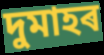
দুমাহৰ